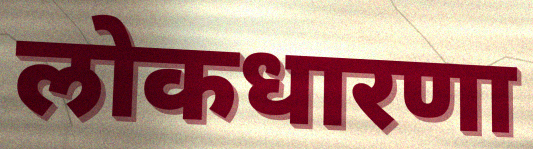
लोकधारणा